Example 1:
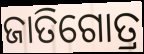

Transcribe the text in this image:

ଜାତିଗୋତ୍ର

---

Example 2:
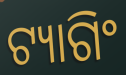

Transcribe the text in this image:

ଟ୍ୟାଗିଂ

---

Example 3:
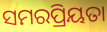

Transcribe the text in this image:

ସମରପ୍ରିୟତା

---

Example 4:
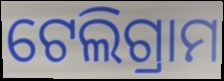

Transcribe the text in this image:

ଟେଲିଗ୍ରାମ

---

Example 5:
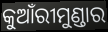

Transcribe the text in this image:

କୁଆଁରୀମୁଣ୍ଡାର